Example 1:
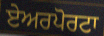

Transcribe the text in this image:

ਏਅਰਪੋਰਟਾ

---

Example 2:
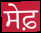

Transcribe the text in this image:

ਸੇਫ਼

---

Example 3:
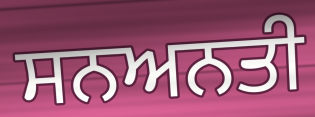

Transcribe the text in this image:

ਸਨਅਨਤੀ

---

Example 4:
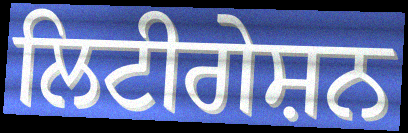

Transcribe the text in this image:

ਲਿਟੀਗੇਸ਼ਨ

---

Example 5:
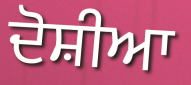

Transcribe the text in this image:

ਦੋਸ਼ੀਆ